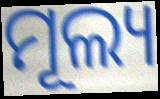
ମୂଲ୍ୟ